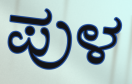
ಪುಳ